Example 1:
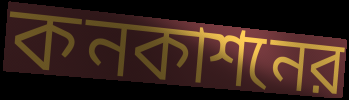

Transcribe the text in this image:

কনকাশনের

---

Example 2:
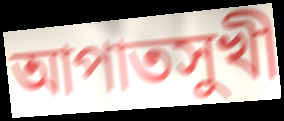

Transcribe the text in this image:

আপাতসুখী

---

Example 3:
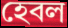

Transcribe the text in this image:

হেবল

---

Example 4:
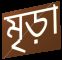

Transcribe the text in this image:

মৃড়া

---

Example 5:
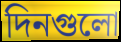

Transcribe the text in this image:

দিনগুলো